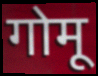
गोमू